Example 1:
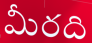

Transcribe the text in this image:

మీరది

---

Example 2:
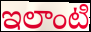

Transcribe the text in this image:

ఇలాంటి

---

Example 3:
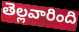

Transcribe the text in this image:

తెల్లవారింది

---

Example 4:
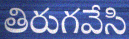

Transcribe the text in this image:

తిరుగవేసి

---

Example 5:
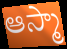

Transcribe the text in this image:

ఆస్మా